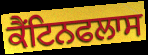
ਕੈਂਟਿਨਫਲਾਸ